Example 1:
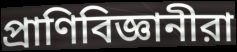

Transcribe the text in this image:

প্রাণিবিজ্ঞানীরা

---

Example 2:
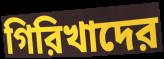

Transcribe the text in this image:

গিরিখাদের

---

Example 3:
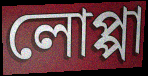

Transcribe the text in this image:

লোপ্পা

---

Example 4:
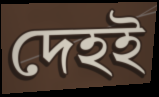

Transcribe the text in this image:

দেহই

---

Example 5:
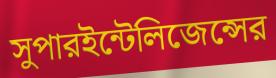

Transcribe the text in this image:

সুপারইন্টেলিজেন্সের